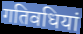
गतिवधियां